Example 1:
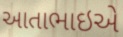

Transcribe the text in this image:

આતાભાઇએ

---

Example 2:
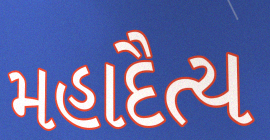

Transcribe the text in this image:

મહાદૈત્ય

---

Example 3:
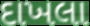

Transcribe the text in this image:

દાખલા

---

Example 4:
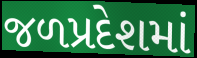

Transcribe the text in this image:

જળપ્રદેશમાં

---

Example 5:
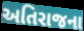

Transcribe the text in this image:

અતિરાજના